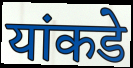
यांकडे